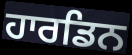
ਹਾਰਡਿਨ